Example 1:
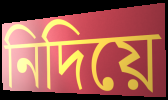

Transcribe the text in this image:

নিদিয়ে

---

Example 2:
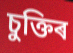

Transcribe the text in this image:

চুক্তিৰ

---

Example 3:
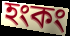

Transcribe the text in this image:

হংকং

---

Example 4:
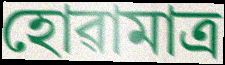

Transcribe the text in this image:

হোৱামাত্ৰ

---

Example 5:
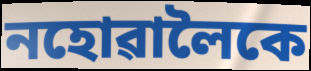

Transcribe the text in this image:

নহোৱালৈকে